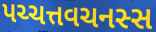
પચ્ચત્તવચનસ્સ